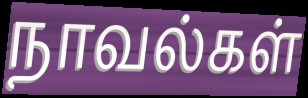
நாவல்கள்